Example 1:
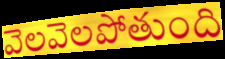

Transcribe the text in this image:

వెలవెలపోతుంది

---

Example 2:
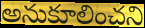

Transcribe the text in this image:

అనుకూలించని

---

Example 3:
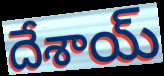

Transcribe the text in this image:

దేశాయ్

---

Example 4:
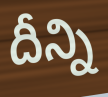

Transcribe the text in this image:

దీన్ని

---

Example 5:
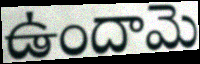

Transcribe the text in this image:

ఉందామె